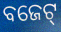
ବଜେଟ୍